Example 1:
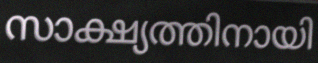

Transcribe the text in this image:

സാക്ഷ്യത്തിനായി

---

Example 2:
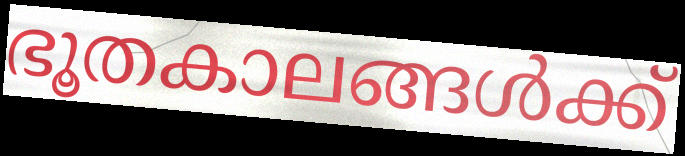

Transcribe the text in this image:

ഭൂതകാലങ്ങൾക്ക്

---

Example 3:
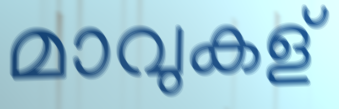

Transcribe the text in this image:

മാവുകള്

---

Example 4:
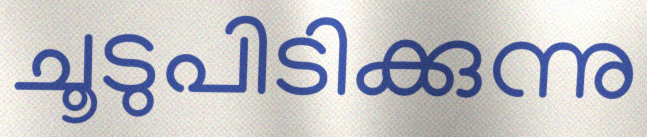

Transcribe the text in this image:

ചൂടുപിടിക്കുന്നു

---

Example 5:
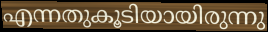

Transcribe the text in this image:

എന്നതുകൂടിയായിരുന്നു